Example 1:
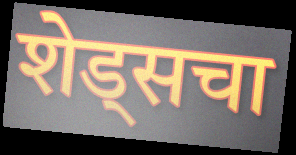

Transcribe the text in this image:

शेड्सचा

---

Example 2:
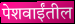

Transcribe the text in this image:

पेशवाईंतील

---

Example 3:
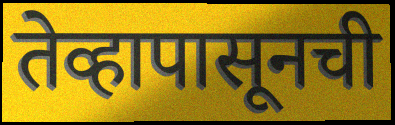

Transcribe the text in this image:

तेव्हापासूनची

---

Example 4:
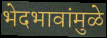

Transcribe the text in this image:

भेदभावांमुळे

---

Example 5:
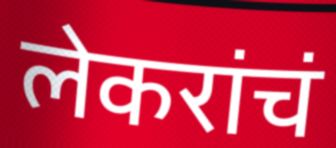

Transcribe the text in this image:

लेकरांचं